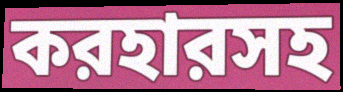
করহারসহ